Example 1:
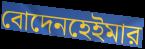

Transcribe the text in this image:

বোদেনহেইমার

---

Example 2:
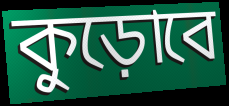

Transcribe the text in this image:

কুড়োবে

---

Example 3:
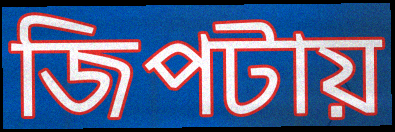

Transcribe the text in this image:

জিপটায়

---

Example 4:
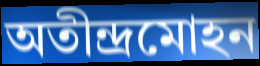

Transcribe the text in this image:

অতীন্দ্রমোহন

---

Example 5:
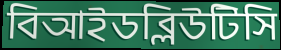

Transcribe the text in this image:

বিআইডব্লিউটিসি